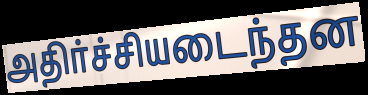
அதிர்ச்சியடைந்தன